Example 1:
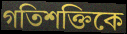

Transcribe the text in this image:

গতিশক্তিকে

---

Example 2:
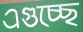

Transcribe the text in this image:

এগুচ্ছে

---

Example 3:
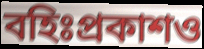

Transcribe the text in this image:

বহিঃপ্রকাশও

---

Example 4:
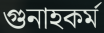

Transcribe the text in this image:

গুনাহকর্ম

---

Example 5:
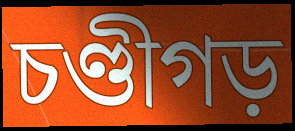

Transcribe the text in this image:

চণ্ডীগড়